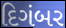
દિગંબર